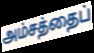
அம்சத்தைப்